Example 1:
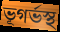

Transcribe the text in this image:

ভূগর্ভস্থ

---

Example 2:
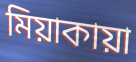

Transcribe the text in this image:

মিয়াকায়া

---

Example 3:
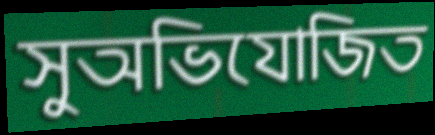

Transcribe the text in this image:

সুঅভিযোজিত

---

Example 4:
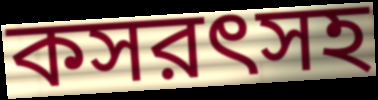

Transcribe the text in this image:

কসরৎসহ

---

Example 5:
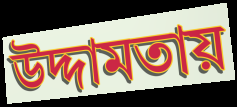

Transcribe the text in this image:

উদ্দামতায়